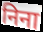
निना